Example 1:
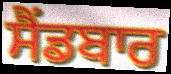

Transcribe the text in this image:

ਸੈਂਡਬਾਰ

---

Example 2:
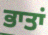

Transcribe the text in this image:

ਭਾਤਾਂ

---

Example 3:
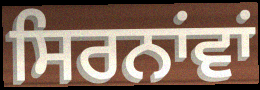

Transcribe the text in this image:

ਸਿਰਨਾਂਵਾਂ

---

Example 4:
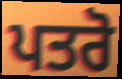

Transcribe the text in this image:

ਪਤਰੋ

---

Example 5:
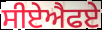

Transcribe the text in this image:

ਸੀਏਐਫਏ